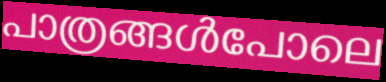
പാത്രങ്ങൾപോലെ